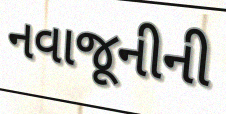
નવાજૂનીની